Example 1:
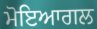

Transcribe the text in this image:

ਮੋਇਆਗਲ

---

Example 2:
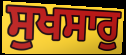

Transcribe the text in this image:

ਸੁਖਸਾਰੁ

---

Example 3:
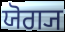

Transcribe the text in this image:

ਯੋਗ੍ਯ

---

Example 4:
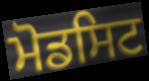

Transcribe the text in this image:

ਮੋਡਸਿਟ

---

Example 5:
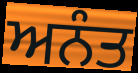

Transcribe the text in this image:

ਅਨੰਤ